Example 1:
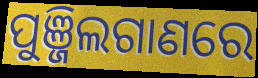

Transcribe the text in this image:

ପୁଞ୍ଜିଲଗାଣରେ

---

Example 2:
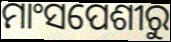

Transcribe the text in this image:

ମାଂସପେଶୀରୁ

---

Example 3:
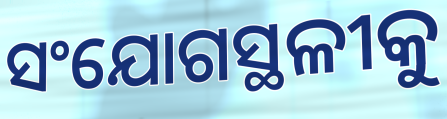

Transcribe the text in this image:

ସଂଯୋଗସ୍ଥଳୀକୁ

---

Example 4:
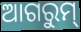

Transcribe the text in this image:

ଆଗରୁମ୍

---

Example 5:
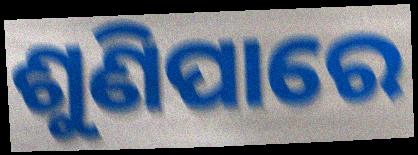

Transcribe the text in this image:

ଶୁଣିପାରେ